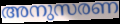
അനുസരണ